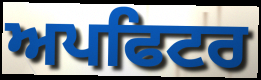
ਅਪਫਿਟਰ